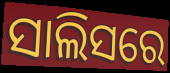
ସାଲିସରେ